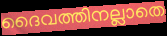
ദൈവത്തിനല്ലാതെ